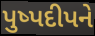
પુષ્પદીપને